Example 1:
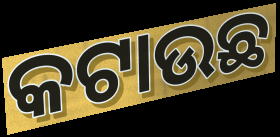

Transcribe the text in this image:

କଟାଉଛ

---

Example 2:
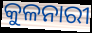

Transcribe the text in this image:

କୁଳନାରୀ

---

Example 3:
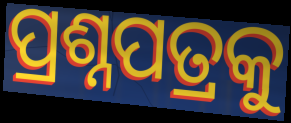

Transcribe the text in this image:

ପ୍ରଶ୍ନପତ୍ରକୁ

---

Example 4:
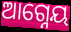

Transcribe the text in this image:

ଆଗ୍ନେୟ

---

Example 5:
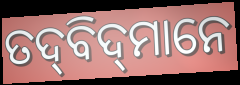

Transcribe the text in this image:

ତଦ୍‌ବିଦ୍‌ମାନେ